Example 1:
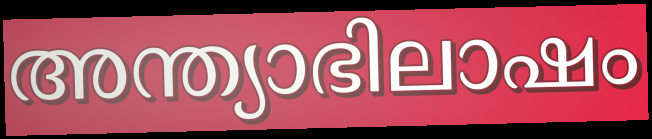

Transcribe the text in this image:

അന്ത്യാഭിലാഷം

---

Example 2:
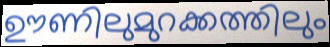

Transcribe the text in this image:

ഊണിലുമുറക്കത്തിലും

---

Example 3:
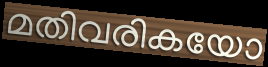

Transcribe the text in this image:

മതിവരികയോ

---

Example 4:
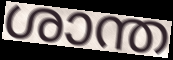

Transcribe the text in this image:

ശാന്ത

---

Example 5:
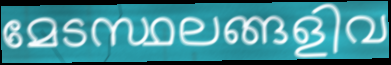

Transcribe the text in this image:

മേടസ്ഥലങ്ങളിവ